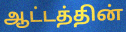
ஆட்டத்தின்